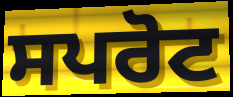
ਸਪਰੋਟ